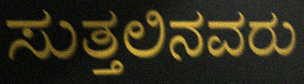
ಸುತ್ತಲಿನವರು